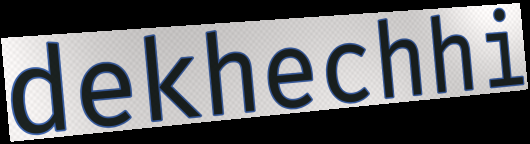
dekhechhi